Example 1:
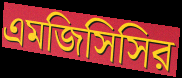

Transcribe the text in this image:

এমজিসিসির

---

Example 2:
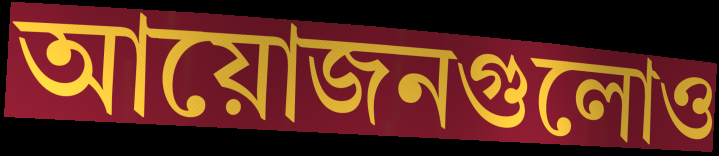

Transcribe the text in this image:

আয়োজনগুলোও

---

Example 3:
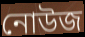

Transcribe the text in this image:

নোউজ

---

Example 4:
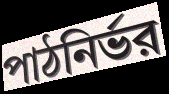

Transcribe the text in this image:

পাঠনির্ভর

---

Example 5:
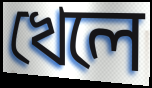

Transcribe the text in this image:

খেলে